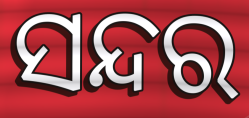
ସନ୍ଦର